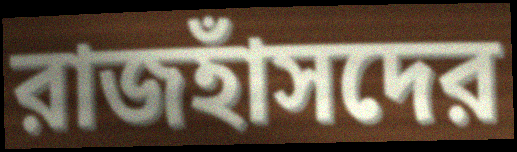
রাজহাঁসদের